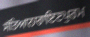
ਸੱਤਿਆਨਾਰਾਇਣਪੁਰਮ